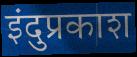
इंदुप्रकाश